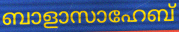
ബാളാസാഹേബ്